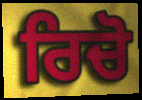
ਰਿਚੋ